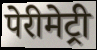
पेरीमेट्री